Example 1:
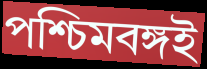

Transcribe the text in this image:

পশ্চিমবঙ্গই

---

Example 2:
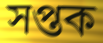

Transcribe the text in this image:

সপ্তক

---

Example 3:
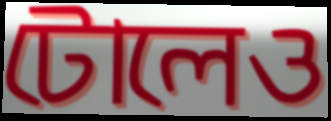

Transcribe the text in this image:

টোলেও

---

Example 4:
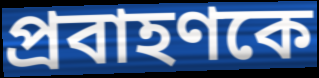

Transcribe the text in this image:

প্রবাহণকে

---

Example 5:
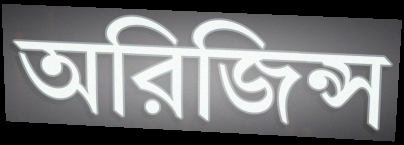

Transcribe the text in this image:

অরিজিন্স